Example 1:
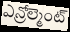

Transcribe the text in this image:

ఎన్రోల్మెంట్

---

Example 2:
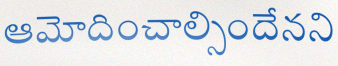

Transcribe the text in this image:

ఆమోదించాల్సిందేనని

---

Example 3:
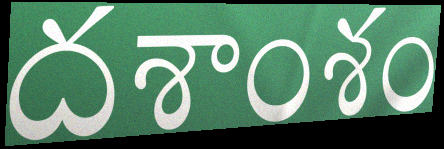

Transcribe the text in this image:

దశాంశం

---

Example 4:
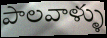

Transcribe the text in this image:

పాలవాళ్ళు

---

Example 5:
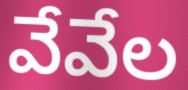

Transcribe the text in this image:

వేవేల